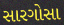
સારગોસા